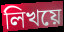
লিখয়ে